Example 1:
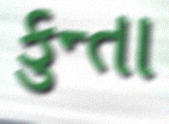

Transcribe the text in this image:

કુન્તા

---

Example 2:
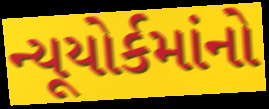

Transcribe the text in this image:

ન્યૂયોર્કમાંનો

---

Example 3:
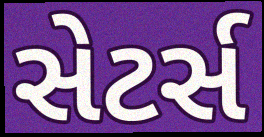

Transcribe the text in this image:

સેટર્સ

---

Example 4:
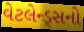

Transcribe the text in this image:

વેટલેન્ડ્સનો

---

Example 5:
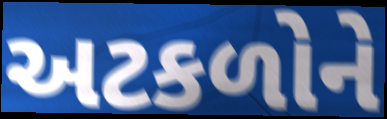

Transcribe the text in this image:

અટકળોને